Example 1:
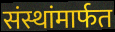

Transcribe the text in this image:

संस्थांमार्फत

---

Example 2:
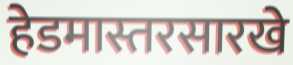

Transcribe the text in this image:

हेडमास्तरसारखे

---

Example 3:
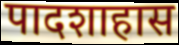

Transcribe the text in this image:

पादशाहास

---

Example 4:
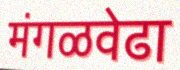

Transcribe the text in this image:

मंगळवेढा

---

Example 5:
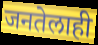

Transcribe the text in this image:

जनतेलाही